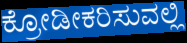
ಕ್ರೋಡೀಕರಿಸುವಲ್ಲಿ